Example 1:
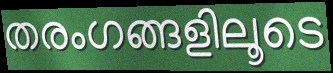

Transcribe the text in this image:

തരംഗങ്ങളിലൂടെ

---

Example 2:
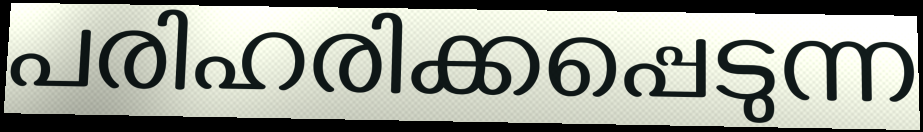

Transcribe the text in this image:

പരിഹരിക്കപ്പെടുന്ന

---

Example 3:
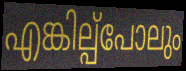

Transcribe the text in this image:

എങ്കില്പ്പോലും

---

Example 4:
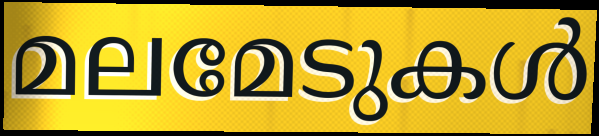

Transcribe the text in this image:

മലമേടുകൾ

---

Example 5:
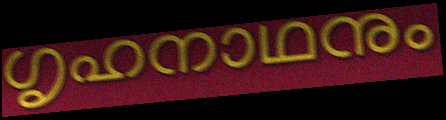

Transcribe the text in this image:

ഗൃഹനാഥനും